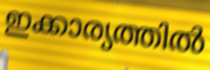
ഇക്കാര്യത്തിൽ